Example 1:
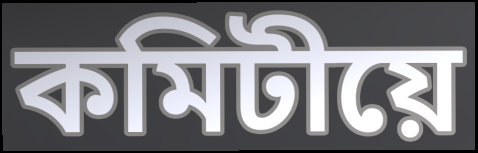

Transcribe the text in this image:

কমিটীয়ে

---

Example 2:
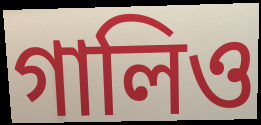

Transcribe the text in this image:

গালিও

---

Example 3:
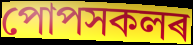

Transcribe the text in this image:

পোপসকলৰ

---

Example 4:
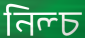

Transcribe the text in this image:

নিল্চ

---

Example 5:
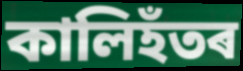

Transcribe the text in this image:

কালিহঁতৰ